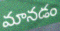
మానడం